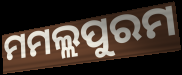
ମମଲ୍ଲପୁରମ